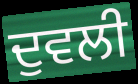
ਦੁਵਲੀ